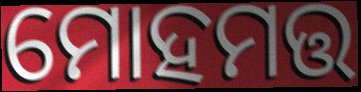
ମୋହମତ୍ତ